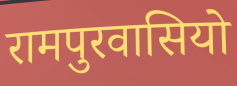
रामपुरवासियो